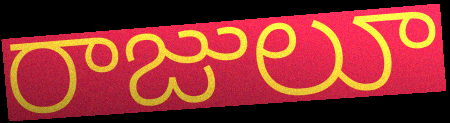
రాజులూ